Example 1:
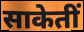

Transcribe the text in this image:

साकेतीं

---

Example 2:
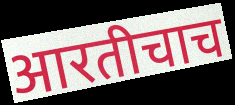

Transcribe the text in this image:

आरतीचाच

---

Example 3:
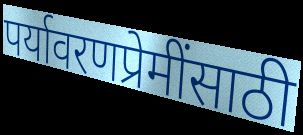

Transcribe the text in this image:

पर्यावरणप्रेमींसाठी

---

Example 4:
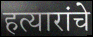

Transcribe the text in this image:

हत्यारांचे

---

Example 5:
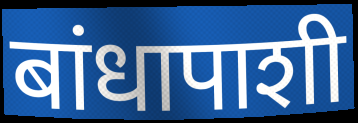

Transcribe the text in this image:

बांधापाशी